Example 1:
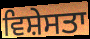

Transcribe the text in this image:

ਵਿਸ਼ੇਸਤਾ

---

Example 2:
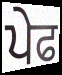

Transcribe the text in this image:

ਪੇਫ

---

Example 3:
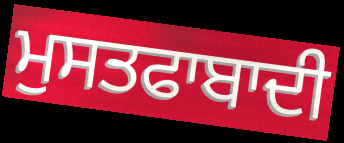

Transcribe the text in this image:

ਮੁਸਤਫਾਬਾਦੀ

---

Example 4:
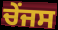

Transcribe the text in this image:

ਚੇਂਜਸ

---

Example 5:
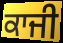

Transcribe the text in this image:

ਕਾਜੀ